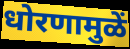
धोरणामुळें